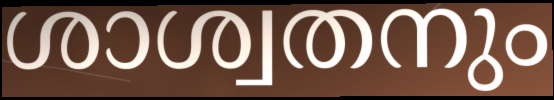
ശാശ്വതനും